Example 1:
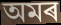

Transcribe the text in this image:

অমৰ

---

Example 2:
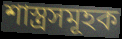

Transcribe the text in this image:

শাস্ত্ৰসমূহক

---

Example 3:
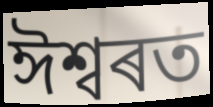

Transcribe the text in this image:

ঈশ্বৰত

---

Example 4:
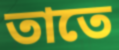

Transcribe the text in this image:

তাতে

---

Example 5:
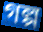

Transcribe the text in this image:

গল্প